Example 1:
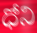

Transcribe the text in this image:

ధోని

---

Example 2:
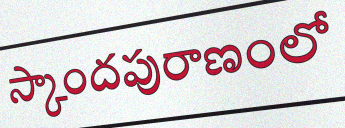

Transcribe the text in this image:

స్కాందపురాణంలో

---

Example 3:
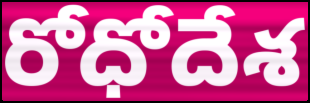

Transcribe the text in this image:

రోధోదేశ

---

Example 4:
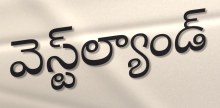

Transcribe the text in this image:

వెస్ట్‌ల్యాండ్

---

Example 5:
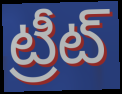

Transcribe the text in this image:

ట్రీట్